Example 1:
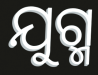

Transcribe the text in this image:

ଯୁଗ୍ମ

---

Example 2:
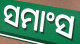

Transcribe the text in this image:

ସମାଂସ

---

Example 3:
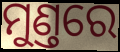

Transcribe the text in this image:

ମୁଣ୍ତରେ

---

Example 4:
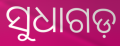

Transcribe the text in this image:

ସୁଧାଗଡ଼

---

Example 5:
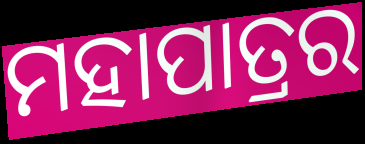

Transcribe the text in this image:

ମହାପାତ୍ରର